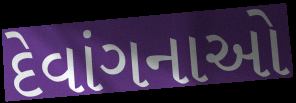
દેવાંગનાઓ